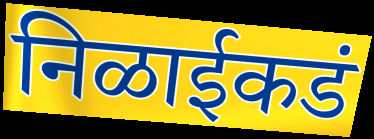
निळाईकडं